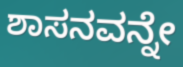
ಶಾಸನವನ್ನೇ